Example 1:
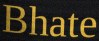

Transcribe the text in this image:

Bhate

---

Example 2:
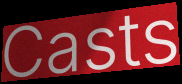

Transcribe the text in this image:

Casts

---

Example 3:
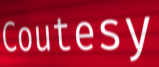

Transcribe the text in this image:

Coutesy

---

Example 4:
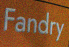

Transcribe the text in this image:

Fandry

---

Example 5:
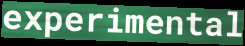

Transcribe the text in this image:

experimental